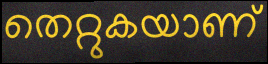
തെറ്റുകയാണ്